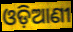
ଓଡ଼ିଆଣୀ